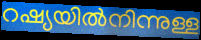
റഷ്യയിൽനിന്നുള്ള